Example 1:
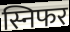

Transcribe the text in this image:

स्निफर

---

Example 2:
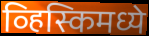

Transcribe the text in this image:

व्हिस्किमध्ये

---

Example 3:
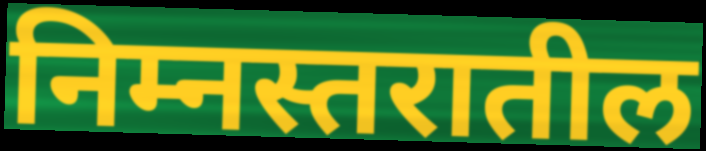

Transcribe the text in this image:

निम्नस्तरातील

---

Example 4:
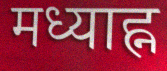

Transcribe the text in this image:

मध्याह्न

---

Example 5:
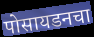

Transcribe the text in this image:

पोसायडनचा